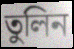
তুলিন